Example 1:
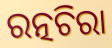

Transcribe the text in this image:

ରତ୍ନଚିରା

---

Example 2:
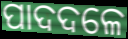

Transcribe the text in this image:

ପାଦଦଳେ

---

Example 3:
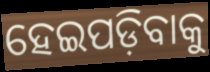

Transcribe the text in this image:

ହେଇପଡ଼ିବାକୁ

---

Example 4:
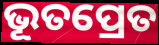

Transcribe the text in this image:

ଭୂତପ୍ରେତ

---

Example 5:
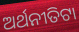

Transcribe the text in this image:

ଅର୍ଥନୀତିଟା